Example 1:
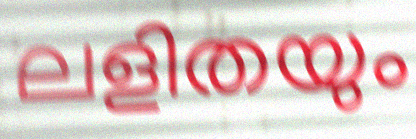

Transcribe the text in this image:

ലളിതയും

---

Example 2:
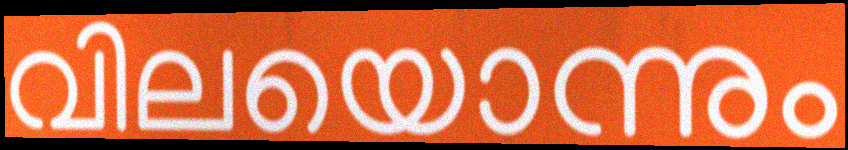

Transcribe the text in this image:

വിലയൊന്നും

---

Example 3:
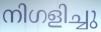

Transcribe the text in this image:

നിഗളിച്ചു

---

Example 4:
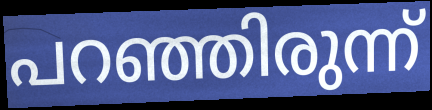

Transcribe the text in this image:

പറഞ്ഞിരുന്ന്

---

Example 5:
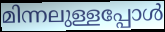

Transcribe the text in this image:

മിന്നലുള്ളപ്പോൾ